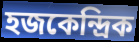
হজকেন্দ্রিক